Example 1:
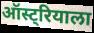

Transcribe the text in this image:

ऑस्ट्रियाला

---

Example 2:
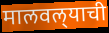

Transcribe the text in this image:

मालवल्याची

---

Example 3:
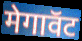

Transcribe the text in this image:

मेगावॅट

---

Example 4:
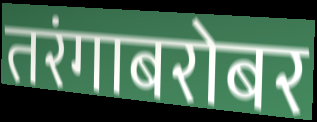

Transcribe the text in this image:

तरंगाबरोबर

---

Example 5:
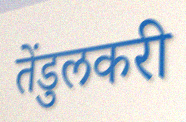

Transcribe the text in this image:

तेंडुलकरी